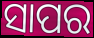
ସାପର